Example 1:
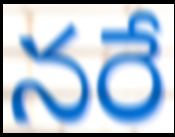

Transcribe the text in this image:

నరే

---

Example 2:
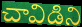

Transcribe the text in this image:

చావిడిని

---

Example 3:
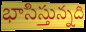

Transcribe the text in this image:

భాసిస్తున్నది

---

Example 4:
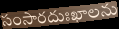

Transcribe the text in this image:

సంసారదుఃఖాలను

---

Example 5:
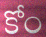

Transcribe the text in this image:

కోం